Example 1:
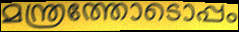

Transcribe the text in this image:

മന്ത്രത്തോടൊപ്പം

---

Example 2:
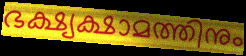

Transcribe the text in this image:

ഭക്ഷ്യക്ഷാമത്തിനും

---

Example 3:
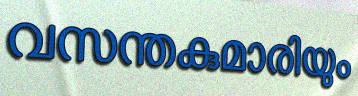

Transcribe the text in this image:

വസന്തകുമാരിയും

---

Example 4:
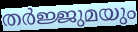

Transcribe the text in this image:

തർജ്ജുമയും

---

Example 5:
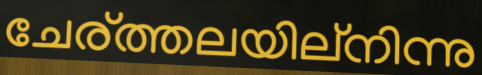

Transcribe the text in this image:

ചേര്ത്തലയില്നിന്നു